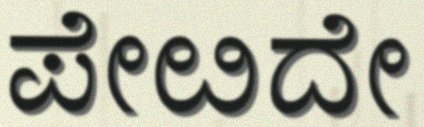
ಪೇೞದೇ